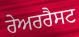
ਰੇਅਰਰੈਸਟ